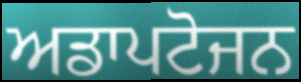
ਅਡਾਪਟੋਜਨ